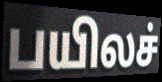
பயிலச்